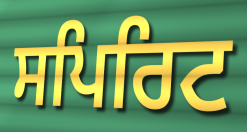
ਸਪਿਰਿਟ